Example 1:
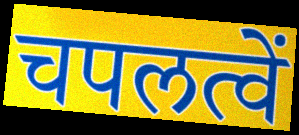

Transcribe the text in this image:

चपलत्वें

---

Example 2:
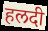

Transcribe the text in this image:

हलदी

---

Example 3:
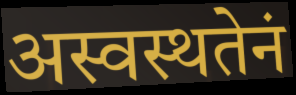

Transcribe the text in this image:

अस्वस्थतेनं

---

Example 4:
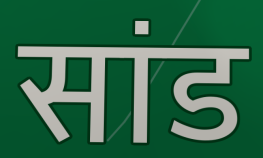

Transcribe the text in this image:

सांड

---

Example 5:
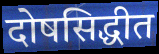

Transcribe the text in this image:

दोषसिद्धीत